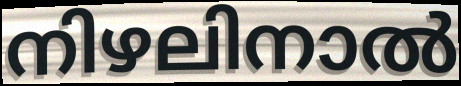
നിഴലിനാൽ